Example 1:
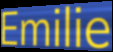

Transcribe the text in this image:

Emilie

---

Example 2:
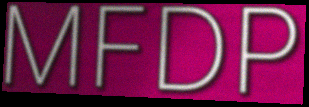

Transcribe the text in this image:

MFDP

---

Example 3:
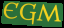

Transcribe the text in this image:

EGM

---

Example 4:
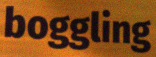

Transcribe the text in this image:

boggling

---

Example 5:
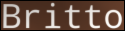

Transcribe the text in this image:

Britto